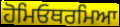
ਹੋਮਿਓਥਰਮਿਆ